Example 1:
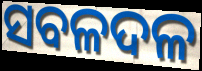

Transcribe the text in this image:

ସବଳଦଳ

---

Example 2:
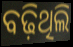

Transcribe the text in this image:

ବଢ଼ିଥିଲି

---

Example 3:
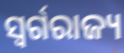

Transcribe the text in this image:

ସ୍ୱର୍ଗରାଜ୍ୟ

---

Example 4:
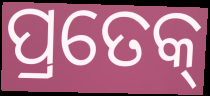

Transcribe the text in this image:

ପ୍ରତେକ୍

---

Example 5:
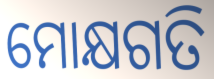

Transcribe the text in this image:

ମୋକ୍ଷଗତି